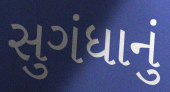
સુગંધાનું